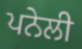
ਪਨੇਲੀ